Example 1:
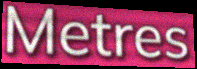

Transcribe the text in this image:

Metres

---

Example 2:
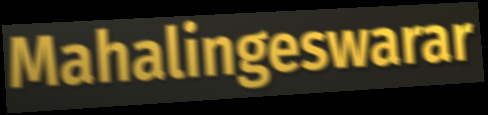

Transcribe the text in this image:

Mahalingeswarar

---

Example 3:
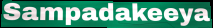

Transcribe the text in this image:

Sampadakeeya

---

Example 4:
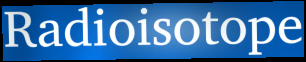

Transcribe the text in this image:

Radioisotope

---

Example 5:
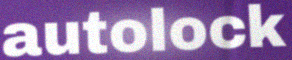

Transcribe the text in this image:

autolock